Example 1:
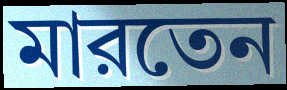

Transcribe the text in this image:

মারতেন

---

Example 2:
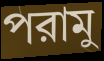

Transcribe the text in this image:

পরামু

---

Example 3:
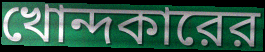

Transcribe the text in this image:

খোন্দকারের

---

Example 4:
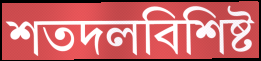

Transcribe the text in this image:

শতদলবিশিষ্ট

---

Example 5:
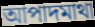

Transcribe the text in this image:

আপাদমাথা